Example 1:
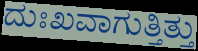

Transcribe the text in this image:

ದುಃಖವಾಗುತ್ತಿತ್ತು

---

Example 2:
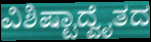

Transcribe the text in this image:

ವಿಶಿಷ್ಟಾದ್ವೈತದ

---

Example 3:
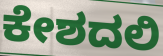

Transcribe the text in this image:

ಕೇಶದಲಿ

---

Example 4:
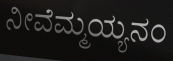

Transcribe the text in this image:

ನೀವೆಮ್ಮಯ್ಯನಂ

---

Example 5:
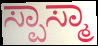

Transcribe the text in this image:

ಸ್ಪಾಸ್ಮಾ